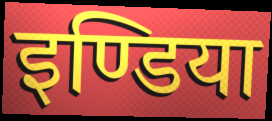
इण्डिया